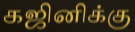
கஜினிக்கு